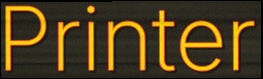
Printer